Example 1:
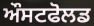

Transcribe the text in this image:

ਔਸਟਫੋਲਡ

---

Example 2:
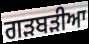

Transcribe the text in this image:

ਗੜਬੜੀਆ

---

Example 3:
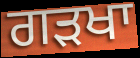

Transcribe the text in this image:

ਗੜਖਾ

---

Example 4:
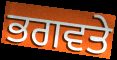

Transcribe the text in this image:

ਭਗਵਤੇ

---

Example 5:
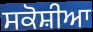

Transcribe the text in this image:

ਸਕੋਸ਼ੀਆ